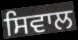
ਸਿਵਾਲ